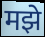
मझे